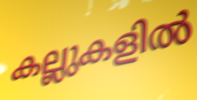
കല്ലുകളിൽ